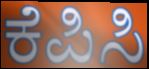
ಕೆಪಿಸಿ